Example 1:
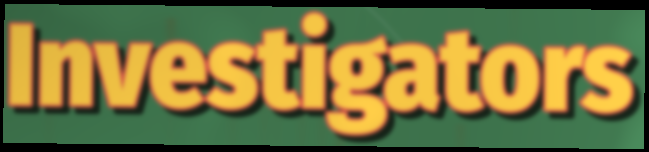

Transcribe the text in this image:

Investigators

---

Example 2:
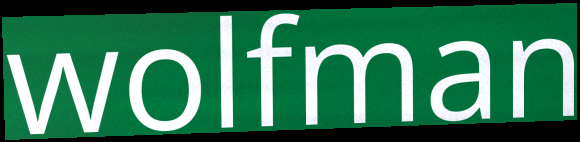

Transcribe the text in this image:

wolfman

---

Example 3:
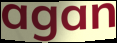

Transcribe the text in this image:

agan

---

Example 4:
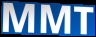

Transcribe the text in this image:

MMT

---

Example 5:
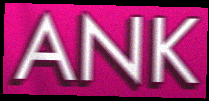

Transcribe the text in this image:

ANK